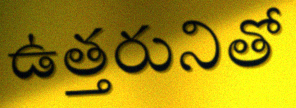
ఉత్తరునితో